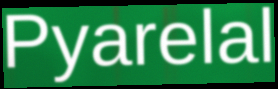
Pyarelal